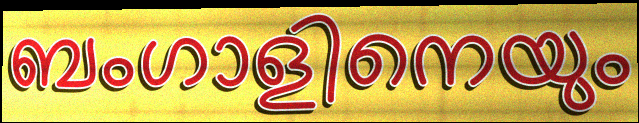
ബംഗാളിനെയും